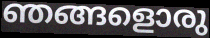
ഞങ്ങളൊരു